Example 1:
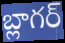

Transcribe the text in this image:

బ్లాగర్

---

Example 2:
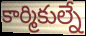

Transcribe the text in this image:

కార్మికుల్నే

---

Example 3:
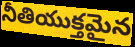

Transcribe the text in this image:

నీతియుక్తమైన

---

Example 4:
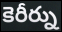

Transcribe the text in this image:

కెరీర్ను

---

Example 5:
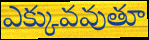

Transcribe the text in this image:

ఎక్కువవుతూ